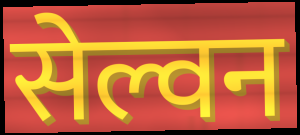
सेल्वन